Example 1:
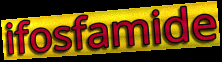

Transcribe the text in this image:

ifosfamide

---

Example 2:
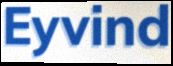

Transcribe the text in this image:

Eyvind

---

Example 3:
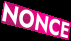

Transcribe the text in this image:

NONCE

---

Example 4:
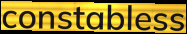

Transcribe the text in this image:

constabless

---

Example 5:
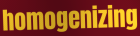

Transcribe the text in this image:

homogenizing